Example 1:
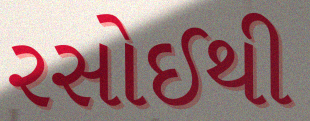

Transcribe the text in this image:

રસોઈથી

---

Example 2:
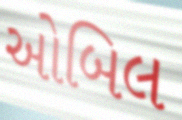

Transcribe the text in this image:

ઓબિલ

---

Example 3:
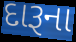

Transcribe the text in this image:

દારૂના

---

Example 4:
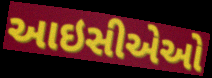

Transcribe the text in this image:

આઇસીએઓ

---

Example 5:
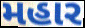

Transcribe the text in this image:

મહાર